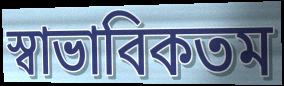
স্বাভাবিকতম